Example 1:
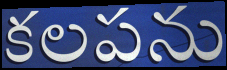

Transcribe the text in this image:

కలపను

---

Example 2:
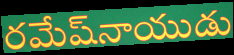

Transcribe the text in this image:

రమేష్‌నాయుడు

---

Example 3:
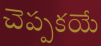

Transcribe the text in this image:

చెప్పకయే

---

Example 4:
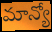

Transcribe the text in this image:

మాన్యో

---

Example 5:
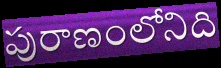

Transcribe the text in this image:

పురాణంలోనిది